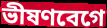
ভীষণবেগে